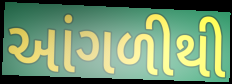
આંગળીથી